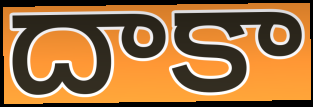
దాకా